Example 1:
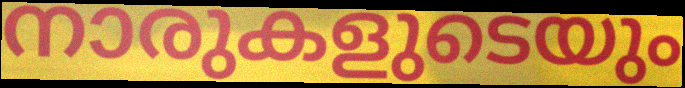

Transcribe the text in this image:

നാരുകളുടെയും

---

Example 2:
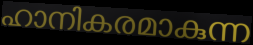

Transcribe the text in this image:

ഹാനികരമാകുന്ന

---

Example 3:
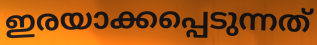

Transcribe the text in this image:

ഇരയാക്കപ്പെടുന്നത്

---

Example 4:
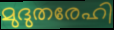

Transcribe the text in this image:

മുദുതരേഹി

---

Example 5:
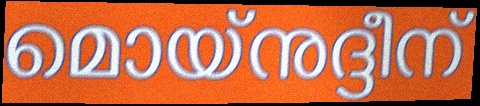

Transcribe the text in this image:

മൊയ്നുദ്ദീന്